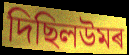
দিছিলউমৰ